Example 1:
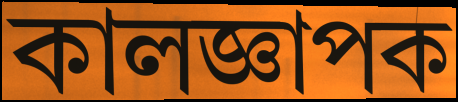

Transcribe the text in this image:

কালজ্ঞাপক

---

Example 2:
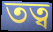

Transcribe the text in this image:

তত্ব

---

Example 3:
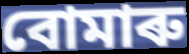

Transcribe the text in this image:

বোমাৰু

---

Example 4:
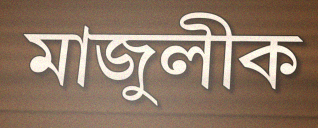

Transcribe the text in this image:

মাজুলীক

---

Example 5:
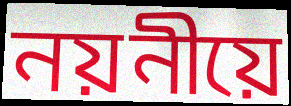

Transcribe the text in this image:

নয়নীয়ে